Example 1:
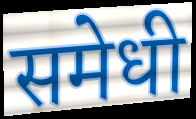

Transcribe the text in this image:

समेधी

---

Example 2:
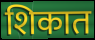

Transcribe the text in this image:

शिकात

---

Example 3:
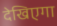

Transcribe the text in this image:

देखिएगा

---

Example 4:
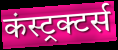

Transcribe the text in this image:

कंस्ट्रक्टर्स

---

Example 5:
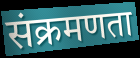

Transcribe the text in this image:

संक्रमणता